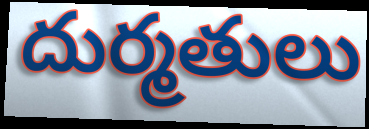
దుర్మతులు